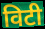
विटी